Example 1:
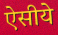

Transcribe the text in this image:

ऐसीये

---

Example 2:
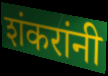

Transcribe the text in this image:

शंकरांनी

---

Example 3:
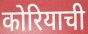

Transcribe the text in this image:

कोरियाची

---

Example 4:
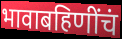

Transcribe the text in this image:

भावाबहिणींचं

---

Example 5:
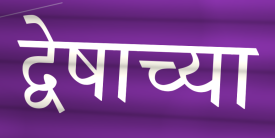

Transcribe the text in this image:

द्वेषाच्या